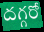
దగ్గరో